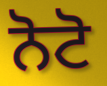
ਨੋਟੋ